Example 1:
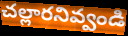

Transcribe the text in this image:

చల్లారనివ్వండి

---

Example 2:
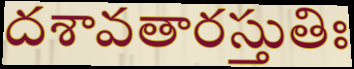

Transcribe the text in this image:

దశావతారస్తుతిః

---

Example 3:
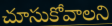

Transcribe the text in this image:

చూసుకోవాలని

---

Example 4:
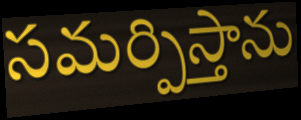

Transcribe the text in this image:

సమర్పిస్తాను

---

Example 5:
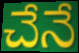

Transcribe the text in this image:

చేనే